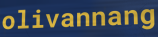
olivannang